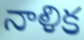
నాళిక